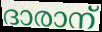
ദാരാന്